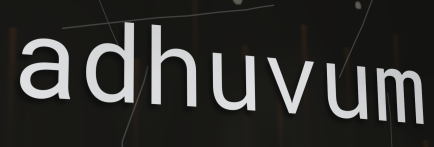
adhuvum